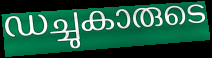
ഡച്ചുകാരുടെ